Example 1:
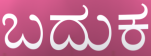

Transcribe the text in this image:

ಬದುಕ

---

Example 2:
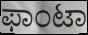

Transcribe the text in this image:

ಫಾಂಟಾ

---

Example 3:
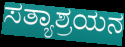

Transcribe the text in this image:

ಸತ್ಯಾಶ್ರಯನ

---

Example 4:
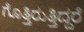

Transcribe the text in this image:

ಗೊತ್ತಿರುತ್ತಿದ್ದರೆ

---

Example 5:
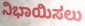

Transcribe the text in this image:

ನಿಭಾಯಿಸಲು